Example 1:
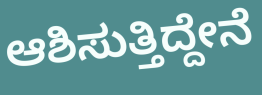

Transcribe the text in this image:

ಆಶಿಸುತ್ತಿದ್ದೇನೆ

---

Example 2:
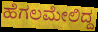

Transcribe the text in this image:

ಹೆಗಲಮೇಲಿದ್ದ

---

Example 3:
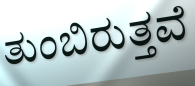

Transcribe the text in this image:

ತುಂಬಿರುತ್ತವೆ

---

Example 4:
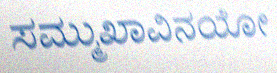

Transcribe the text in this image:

ಸಮ್ಮುಖಾವಿನಯೋ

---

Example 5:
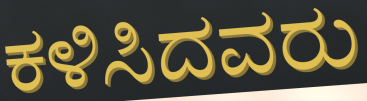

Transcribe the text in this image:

ಕಳಿಸಿದವರು